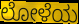
ಲೋಳೆಯ